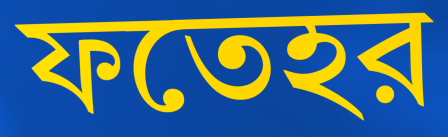
ফতেহর